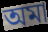
অমা